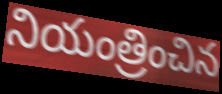
నియంత్రించిన